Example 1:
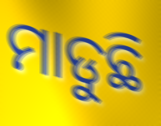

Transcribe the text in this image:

ମାଡୁଛି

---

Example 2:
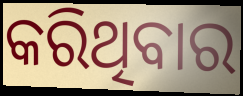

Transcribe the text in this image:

କରିଥିବାର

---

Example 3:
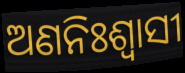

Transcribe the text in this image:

ଅଣନିଃଶ୍ଵାସୀ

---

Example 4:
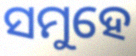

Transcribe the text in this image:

ସମୁହେ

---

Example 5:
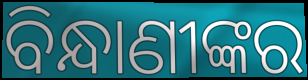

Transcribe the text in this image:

ବିନ୍ଧାଣୀଙ୍କର